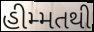
હીમ્મતથી